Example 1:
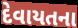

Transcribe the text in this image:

દેવાયતના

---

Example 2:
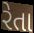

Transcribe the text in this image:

રેતા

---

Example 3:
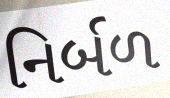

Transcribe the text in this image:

નિર્બળ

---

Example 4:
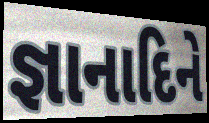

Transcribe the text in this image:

જ્ઞાનાદિને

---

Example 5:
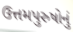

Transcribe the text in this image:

ઉત્તમપુરુષોનું